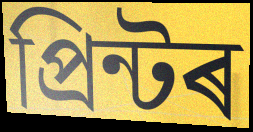
প্ৰিন্টৰ